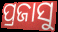
ପ୍ରଜାସୁ